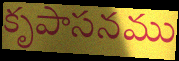
కృపాసనము